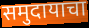
समुदायाचा